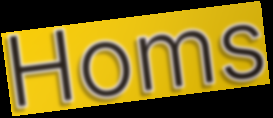
Homs